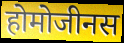
होमोजीनस